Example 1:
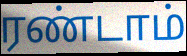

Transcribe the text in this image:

ரண்டாம்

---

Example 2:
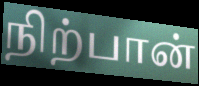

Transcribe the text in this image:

நிற்பான்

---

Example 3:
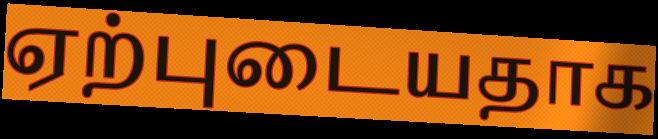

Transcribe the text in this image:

ஏற்புடையதாக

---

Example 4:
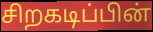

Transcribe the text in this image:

சிறகடிப்பின்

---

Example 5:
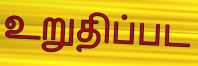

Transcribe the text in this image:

உறுதிப்பட